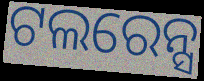
ଟଲରେନ୍ସ